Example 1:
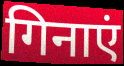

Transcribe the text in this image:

गिनाएं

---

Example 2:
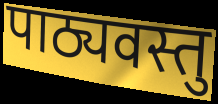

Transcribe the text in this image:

पाठ्यवस्तु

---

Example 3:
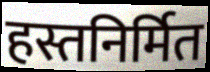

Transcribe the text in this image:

हस्तनिर्मित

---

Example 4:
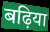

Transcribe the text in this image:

बढ़िया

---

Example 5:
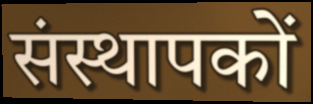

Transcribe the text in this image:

संस्थापकों